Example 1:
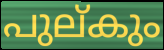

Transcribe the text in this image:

പുല്കും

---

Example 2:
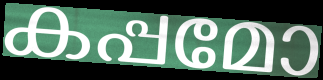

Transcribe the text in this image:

കപ്പമോ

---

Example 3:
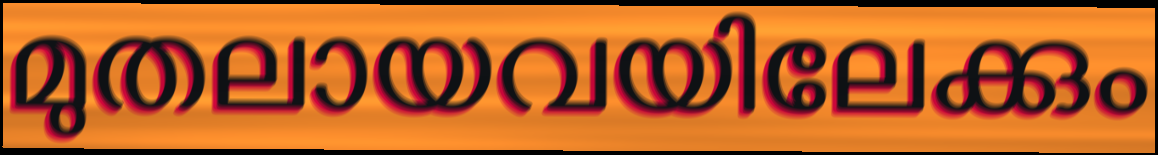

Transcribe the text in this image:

മുതലായവയിലേക്കും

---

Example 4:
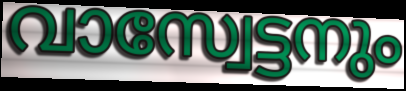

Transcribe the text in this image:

വാസ്വേട്ടനും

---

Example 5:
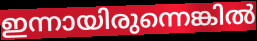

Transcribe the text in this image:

ഇന്നായിരുന്നെങ്കിൽ